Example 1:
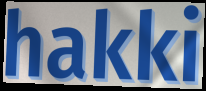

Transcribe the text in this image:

hakki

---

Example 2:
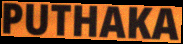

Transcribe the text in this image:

PUTHAKA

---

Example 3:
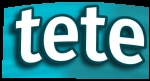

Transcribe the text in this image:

tete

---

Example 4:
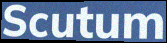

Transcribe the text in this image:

Scutum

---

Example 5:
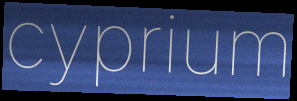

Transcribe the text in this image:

cyprium